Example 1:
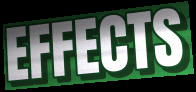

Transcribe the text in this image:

EFFECTS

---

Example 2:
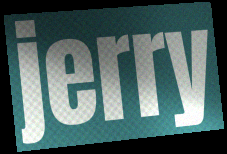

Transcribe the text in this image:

jerry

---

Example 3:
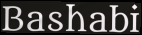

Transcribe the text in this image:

Bashabi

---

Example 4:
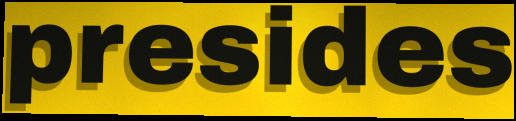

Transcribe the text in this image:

presides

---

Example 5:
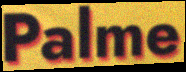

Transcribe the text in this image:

Palme